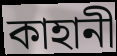
কাহানী